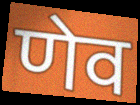
णेव